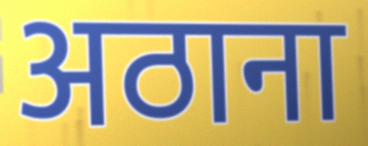
अठाना